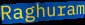
Raghuram